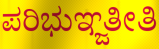
ಪರಿಭುಞ್ಜತೀತಿ